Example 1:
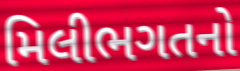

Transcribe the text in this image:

મિલીભગતનો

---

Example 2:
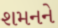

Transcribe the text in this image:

શમનને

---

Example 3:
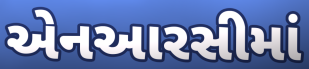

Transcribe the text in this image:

એનઆરસીમાં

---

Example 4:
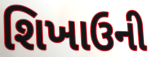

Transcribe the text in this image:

શિખાઉની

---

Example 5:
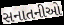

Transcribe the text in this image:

સનાતનીઓ